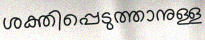
ശക്തിപ്പെടുത്താനുള്ള